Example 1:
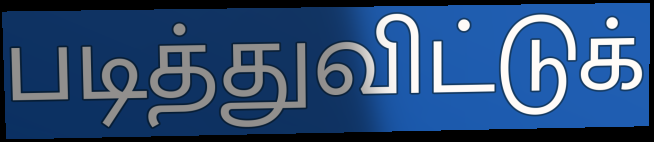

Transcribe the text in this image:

படித்துவிட்டுக்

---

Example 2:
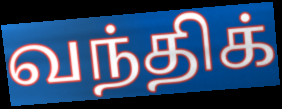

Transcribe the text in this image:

வந்திக்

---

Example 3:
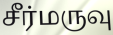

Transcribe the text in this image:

சீர்மருவு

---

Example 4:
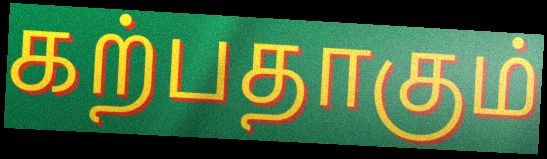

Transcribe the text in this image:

கற்பதாகும்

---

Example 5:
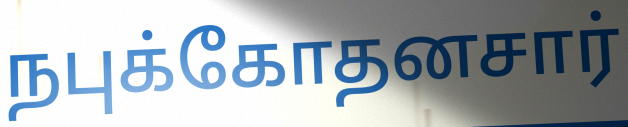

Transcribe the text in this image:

நபுக்கோதனசார்